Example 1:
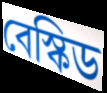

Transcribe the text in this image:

বেস্কিড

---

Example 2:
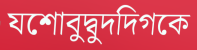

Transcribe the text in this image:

যশোবুদ্বুদদিগকে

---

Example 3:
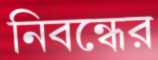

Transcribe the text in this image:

নিবন্ধের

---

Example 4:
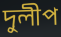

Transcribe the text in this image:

দুলীপ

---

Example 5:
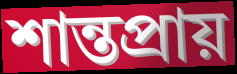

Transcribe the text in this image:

শান্তপ্রায়